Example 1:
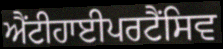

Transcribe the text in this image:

ਐਂਟੀਹਾਈਪਰਟੈਂਸਿਵ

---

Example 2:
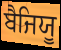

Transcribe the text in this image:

ਬੈਜਿਯੂ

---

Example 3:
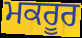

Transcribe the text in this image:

ਮਕਰੂਰ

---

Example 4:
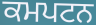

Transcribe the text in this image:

ਕਮਪਟਨ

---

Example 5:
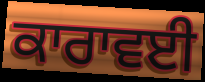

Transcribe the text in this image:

ਕਾਰਾਵਈ